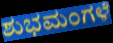
ಶುಭಮಂಗಳೆ